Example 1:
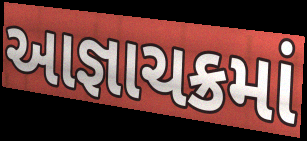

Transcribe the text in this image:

આજ્ઞાચક્રમાં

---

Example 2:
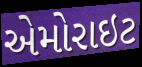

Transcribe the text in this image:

એમોરાઇટ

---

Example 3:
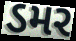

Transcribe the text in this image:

ડમર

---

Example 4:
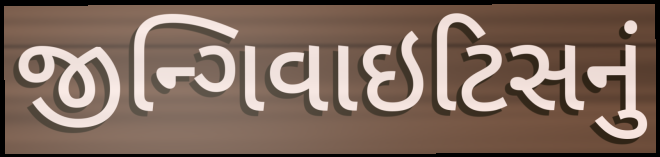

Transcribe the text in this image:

જીન્ગિવાઇટિસનું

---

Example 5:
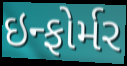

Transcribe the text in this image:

ઇન્ફોર્મર